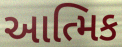
આત્મિક